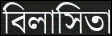
বিলাসিতা